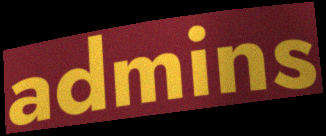
admins